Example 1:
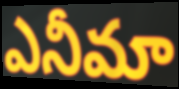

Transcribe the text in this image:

ఎనీమా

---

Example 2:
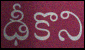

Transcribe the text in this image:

ఢీకొని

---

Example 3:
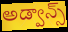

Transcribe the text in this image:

అడ్వాన్స్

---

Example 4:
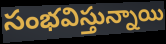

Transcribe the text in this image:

సంభవిస్తున్నాయి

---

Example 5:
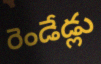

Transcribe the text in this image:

రెండేడ్లు